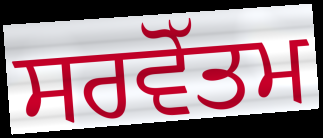
ਸਰਵੋੱਤਮ